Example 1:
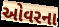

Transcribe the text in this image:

ઓવરના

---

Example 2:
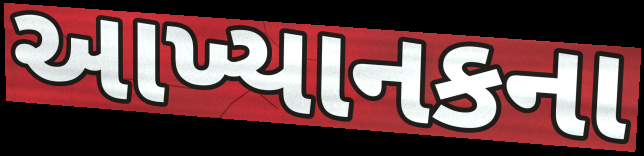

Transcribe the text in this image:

આખ્યાનકના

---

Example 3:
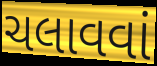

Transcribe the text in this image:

ચલાવવાં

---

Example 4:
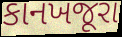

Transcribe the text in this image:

કાનખજૂરા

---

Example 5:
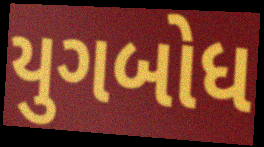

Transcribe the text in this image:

યુગબોધ